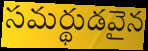
సమర్థుడవైన